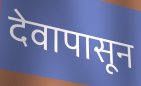
देवापासून